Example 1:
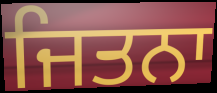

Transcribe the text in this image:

ਜਿਤਨਾ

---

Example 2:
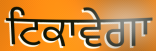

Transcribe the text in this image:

ਟਿਕਾਵੇਗਾ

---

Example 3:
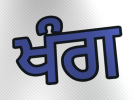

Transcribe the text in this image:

ਖੰਗ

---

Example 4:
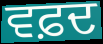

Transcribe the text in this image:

ਵਫ਼ਦ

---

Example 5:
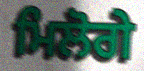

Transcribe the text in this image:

ਮਿਲੋਗੇ